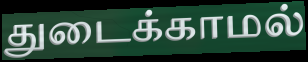
துடைக்காமல்